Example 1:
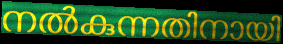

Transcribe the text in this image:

നൽകുന്നതിനായി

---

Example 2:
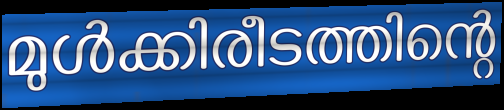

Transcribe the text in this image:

മുൾക്കിരീടത്തിന്റെ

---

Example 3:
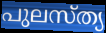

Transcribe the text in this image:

പുലസ്ത്യ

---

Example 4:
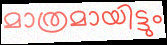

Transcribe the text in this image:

മാത്രമായിട്ടും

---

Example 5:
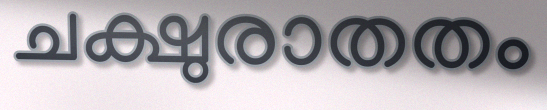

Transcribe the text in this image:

ചക്ഷുരാതതം